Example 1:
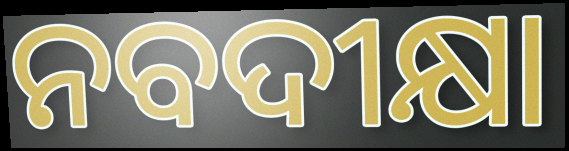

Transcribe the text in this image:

ନବଦୀକ୍ଷା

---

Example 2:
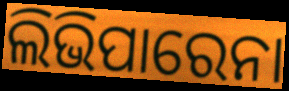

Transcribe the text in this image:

ଲିଭିପାରେନା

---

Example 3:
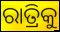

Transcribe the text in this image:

ରାତ୍ରିକୁ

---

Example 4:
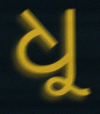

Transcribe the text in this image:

ଧୁ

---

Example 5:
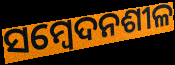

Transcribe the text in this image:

ସମ୍ବେଦନଶୀଳ